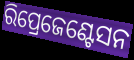
ରିପ୍ରେଜେଣ୍ଟେସନ